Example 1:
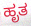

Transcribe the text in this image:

ಹೃತ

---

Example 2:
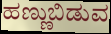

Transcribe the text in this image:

ಹಣ್ಣುಬಿಡುವ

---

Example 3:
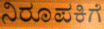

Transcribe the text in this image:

ನಿರೂಪಕಿಗೆ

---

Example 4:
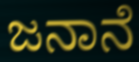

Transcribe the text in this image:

ಜನಾನೆ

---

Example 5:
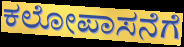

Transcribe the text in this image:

ಕಲೋಪಾಸನೆಗೆ